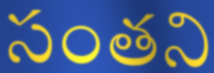
సంతని